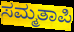
ಸಮ್ಮತಾಪಿ